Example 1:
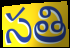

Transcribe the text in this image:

సతి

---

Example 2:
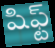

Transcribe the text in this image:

షిఫ్ట్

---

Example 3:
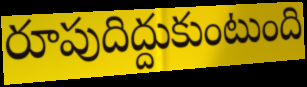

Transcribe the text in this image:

రూపుదిద్దుకుంటుంది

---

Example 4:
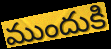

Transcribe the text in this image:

ముందుకి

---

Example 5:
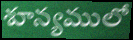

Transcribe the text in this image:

శూన్యములో